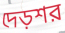
দেড়শর